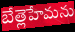
బేత్లెహేమను